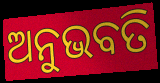
ଅନୁଭବତି